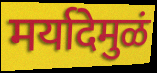
मर्यादेमुळं